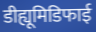
डीह्यूमिडिफाई